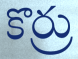
కొర్రు